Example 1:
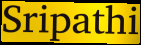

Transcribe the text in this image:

Sripathi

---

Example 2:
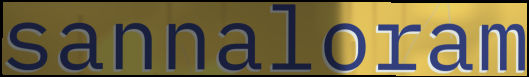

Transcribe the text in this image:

sannaloram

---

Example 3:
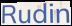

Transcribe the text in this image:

Rudin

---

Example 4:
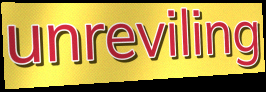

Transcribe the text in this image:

unreviling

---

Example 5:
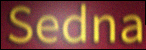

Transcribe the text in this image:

Sedna